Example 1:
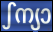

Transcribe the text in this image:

ഽന്യാ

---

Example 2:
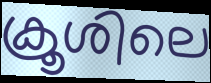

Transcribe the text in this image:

ക്രൂശിലെ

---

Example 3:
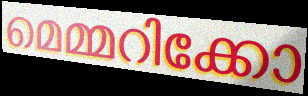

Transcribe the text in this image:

മെമ്മറിക്കോ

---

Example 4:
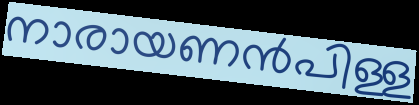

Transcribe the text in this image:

നാരായണൻപിള്ള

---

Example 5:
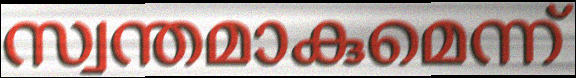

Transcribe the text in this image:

സ്വന്തമാകുമെന്ന്